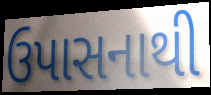
ઉપાસનાથી